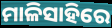
ମାଳିସାହିରେ